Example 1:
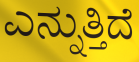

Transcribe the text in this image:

ಎನ್ನುತ್ತಿದೆ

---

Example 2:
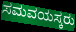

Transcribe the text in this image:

ಸಮವಯಸ್ಕರು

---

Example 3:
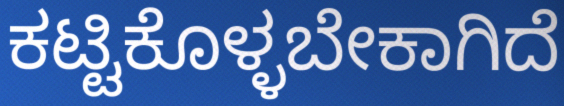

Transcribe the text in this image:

ಕಟ್ಟಿಕೊಳ್ಳಬೇಕಾಗಿದೆ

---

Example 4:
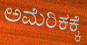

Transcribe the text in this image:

ಅಮೆರಿಕಕ್ಕೆ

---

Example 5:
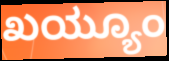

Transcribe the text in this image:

ಖಯ್ಯೂಂ